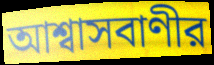
আশ্বাসবাণীর